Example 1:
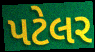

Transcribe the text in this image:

પટેલર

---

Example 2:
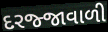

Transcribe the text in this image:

દરજ્જાવાળી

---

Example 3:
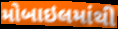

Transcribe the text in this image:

મોબાઇલમાંથી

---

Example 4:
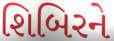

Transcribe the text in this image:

શિબિરને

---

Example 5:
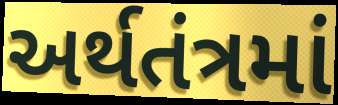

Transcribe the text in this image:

અર્થતંત્રમાં